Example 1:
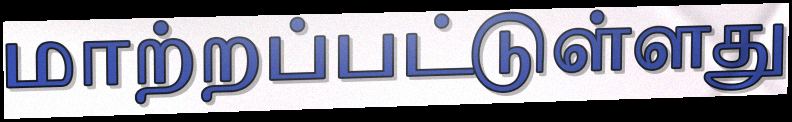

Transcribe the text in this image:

மாற்றப்பட்டுள்ளது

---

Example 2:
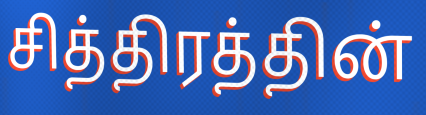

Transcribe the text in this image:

சித்திரத்தின்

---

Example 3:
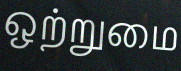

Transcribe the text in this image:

ஒற்றுமை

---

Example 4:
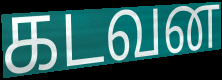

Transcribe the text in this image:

கடவன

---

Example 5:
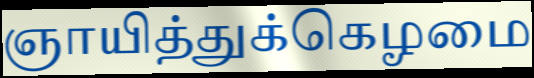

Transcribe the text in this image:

ஞாயித்துக்கெழமை